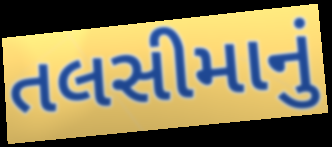
તલસીમાનું